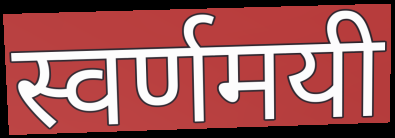
स्वर्णमयी